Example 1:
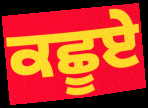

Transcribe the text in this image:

ਕਛੂਏ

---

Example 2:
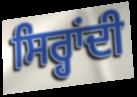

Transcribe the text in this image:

ਸਿਰ੍ਹਾਂਦੀ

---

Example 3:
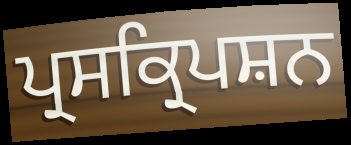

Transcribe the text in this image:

ਪ੍ਰਸਕ੍ਰਿਪਸ਼ਨ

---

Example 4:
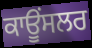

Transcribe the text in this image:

ਕਾਊਂਸਲਰ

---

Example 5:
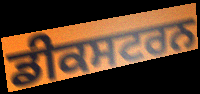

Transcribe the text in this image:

ਡੀਕਸਟਰਨ